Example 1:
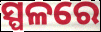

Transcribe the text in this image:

ସ୍ପଳରେ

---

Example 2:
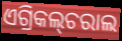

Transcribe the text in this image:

ଏଗ୍ରିକଲ୍‌ଚରାଲ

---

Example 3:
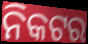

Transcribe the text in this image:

ନିକଟର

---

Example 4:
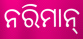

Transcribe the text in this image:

ନରିମାନ୍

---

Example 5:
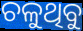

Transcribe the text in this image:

ଚଳୁଥିବୁ